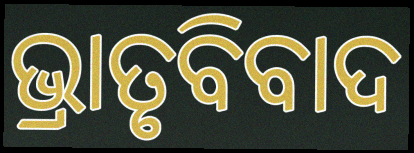
ଭ୍ରାତୃବିବାଦ